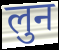
लुन